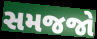
સમજજો